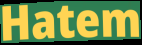
Hatem